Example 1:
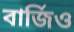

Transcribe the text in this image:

বার্জিও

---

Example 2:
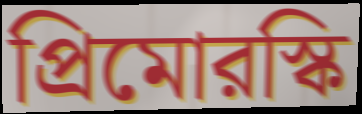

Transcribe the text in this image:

প্রিমোরস্কি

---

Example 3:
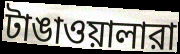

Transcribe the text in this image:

টাঙাওয়ালারা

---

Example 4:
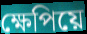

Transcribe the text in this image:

ক্ষেপিয়ে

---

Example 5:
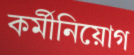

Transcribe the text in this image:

কর্মীনিয়োগ